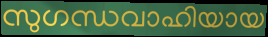
സുഗന്ധവാഹിയായ